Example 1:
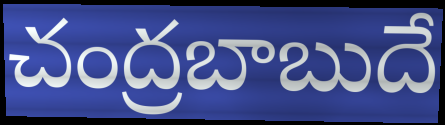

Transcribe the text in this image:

చంద్రబాబుదే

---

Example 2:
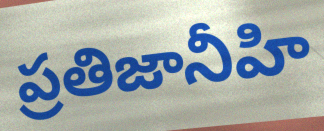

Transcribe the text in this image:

ప్రతిజానీహి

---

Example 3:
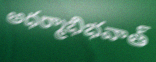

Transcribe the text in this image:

అధర్మాభిభవాత్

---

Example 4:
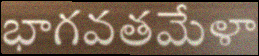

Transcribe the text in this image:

భాగవతమేళా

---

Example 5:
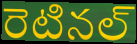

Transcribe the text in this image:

రెటినల్